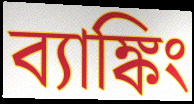
ব্যাঙ্কিং